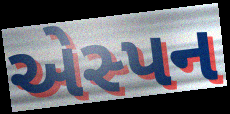
એસ્પન